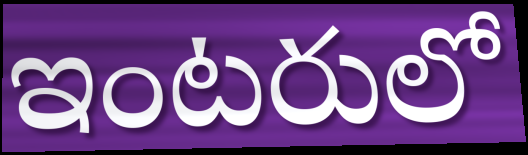
ఇంటరులో